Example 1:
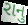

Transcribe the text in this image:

રાનુ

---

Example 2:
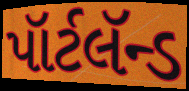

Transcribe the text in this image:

પૉર્ટલૅન્ડ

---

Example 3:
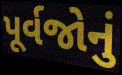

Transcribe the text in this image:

પૂર્વજોનું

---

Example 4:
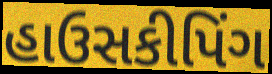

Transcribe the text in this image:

હાઉસકીપિંગ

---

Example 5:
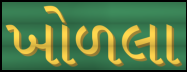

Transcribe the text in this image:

ખોળલા